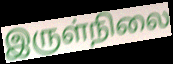
இருள்நிலை